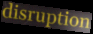
disruption